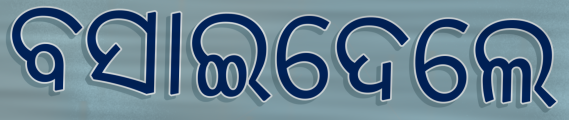
ବସାଇଦେଲେ